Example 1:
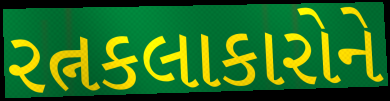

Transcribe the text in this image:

રત્નકલાકારોને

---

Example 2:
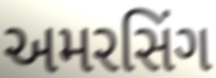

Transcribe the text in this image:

અમરસિંગ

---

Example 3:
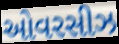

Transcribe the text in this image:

ઓવરસીઝ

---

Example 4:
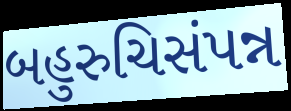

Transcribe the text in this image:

બહુરુચિસંપન્ન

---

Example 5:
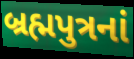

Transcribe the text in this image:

બ્રહ્મપુત્રનાં